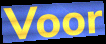
Voor